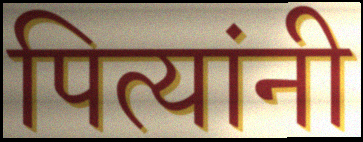
पित्यांनी